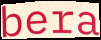
bera